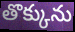
తొక్కును